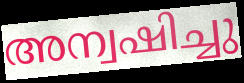
അന്വഷിച്ചു